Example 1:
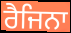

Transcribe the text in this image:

ਰੈਜਿਨਾ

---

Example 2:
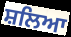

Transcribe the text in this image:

ਸ਼ਲਿਆ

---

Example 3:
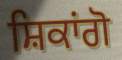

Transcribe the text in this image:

ਸ਼ਿਕਾਂਗੋ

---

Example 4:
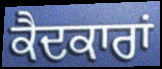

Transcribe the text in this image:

ਕੈਦਕਾਰਾਂ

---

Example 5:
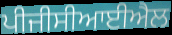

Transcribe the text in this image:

ਪੀਜੀਸੀਆਈਐਲ